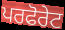
ਪਰਫੋਰੇਟ